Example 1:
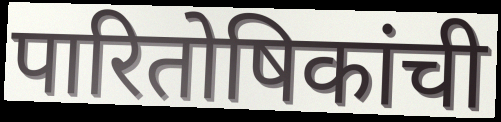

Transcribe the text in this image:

पारितोषिकांची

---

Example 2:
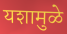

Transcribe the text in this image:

यशामुळे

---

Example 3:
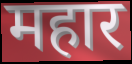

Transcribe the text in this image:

महार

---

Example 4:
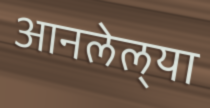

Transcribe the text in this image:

आनलेल्या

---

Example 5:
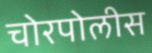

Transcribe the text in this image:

चोरपोलीस